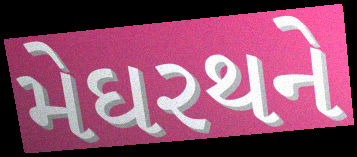
મેઘરથને